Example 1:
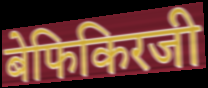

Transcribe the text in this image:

बेफिकिरजी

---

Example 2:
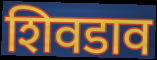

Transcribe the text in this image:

शिवडाव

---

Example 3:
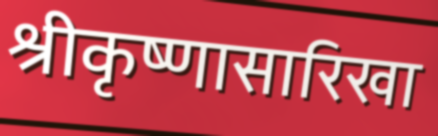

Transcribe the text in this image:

श्रीकृष्णासारिखा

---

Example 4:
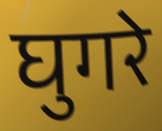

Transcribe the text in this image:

घुगरे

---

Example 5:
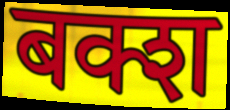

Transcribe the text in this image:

बक्श